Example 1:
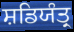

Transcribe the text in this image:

ਸ਼ਡਿਯੰਤ੍ਰ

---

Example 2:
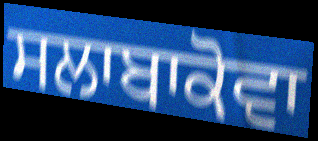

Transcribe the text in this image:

ਸਲਾਬਾਕੋਵਾ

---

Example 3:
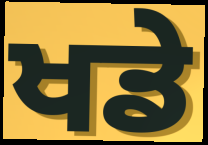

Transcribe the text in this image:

ਖਡੇ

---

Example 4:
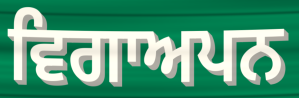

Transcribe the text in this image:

ਵਿਗਾਅਪਨ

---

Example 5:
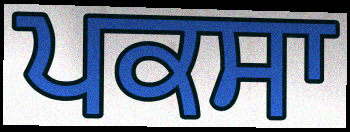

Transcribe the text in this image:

ਪਕਸਾ